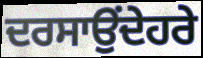
ਦਰਸਾਉਂਦੇਹਰੇ